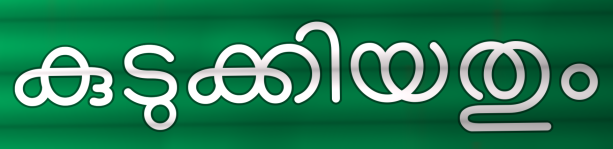
കുടുക്കിയതും